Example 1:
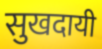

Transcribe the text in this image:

सुखदायी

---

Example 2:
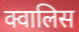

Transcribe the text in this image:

क्वालिस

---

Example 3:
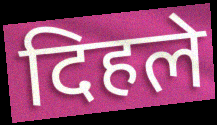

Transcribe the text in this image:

दिहले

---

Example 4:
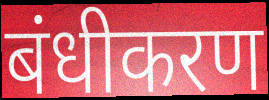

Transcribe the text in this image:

बंधीकरण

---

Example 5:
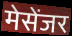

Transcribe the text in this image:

मेसेंजर